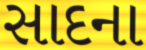
સાદના